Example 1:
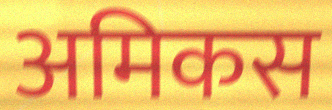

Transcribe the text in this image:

अमिकस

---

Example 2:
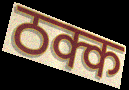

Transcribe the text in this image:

ठक्क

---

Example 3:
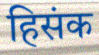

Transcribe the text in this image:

हिसंक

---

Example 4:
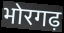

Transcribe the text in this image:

भोरगढ़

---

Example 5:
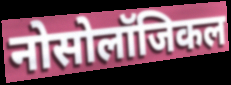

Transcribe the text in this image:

नोसोलॉजिकल